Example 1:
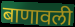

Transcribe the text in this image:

बाणावली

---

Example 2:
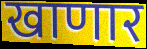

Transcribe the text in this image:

खाणार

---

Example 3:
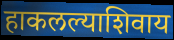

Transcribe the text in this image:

हाकलल्याशिवाय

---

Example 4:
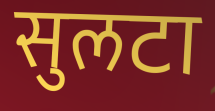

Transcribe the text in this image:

सुलटा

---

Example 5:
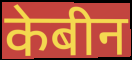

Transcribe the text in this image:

केबीन